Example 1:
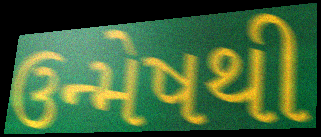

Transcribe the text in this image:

ઉન્મેષથી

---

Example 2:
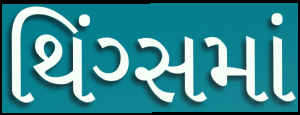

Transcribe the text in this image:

થિંગ્સમાં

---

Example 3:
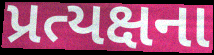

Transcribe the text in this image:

પ્રત્યક્ષના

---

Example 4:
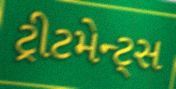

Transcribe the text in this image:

ટ્રીટમેન્ટ્સ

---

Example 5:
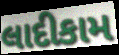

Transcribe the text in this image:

લાદીકામ